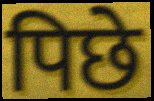
पिछे